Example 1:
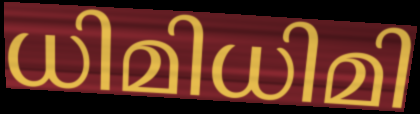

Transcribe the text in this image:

ധിമിധിമി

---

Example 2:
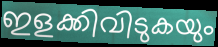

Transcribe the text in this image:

ഇളക്കിവിടുകയും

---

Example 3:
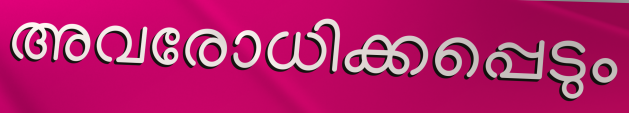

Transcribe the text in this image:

അവരോധിക്കപ്പെടും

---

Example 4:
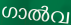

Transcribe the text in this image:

ഗാൽവ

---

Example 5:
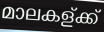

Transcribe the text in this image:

മാലകള്ക്ക്